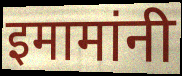
इमामांनी